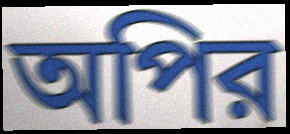
অপির